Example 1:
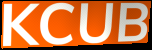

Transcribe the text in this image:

KCUB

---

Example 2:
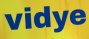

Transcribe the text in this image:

vidye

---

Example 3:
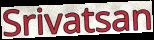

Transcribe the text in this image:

Srivatsan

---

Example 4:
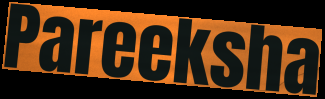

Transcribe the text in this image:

Pareeksha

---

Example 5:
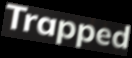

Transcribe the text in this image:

Trapped